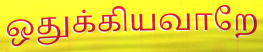
ஒதுக்கியவாறே